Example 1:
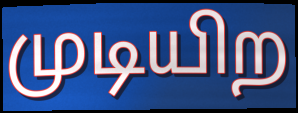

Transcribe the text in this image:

முடியிற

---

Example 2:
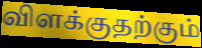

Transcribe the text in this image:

விளக்குதற்கும்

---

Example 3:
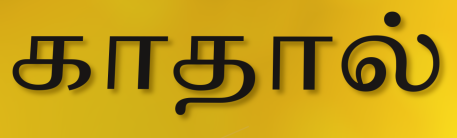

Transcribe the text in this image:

காதால்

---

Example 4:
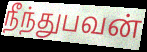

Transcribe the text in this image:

நீந்துபவன்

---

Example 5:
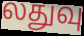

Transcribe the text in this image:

லதுவு